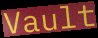
Vault